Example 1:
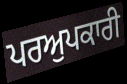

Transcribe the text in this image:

ਪਰਅੁਪਕਾਰੀ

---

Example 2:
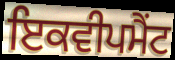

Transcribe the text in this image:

ਇਕਵੀਪਮੈਂਟ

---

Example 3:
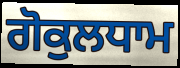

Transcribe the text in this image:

ਗੋਕੁਲਧਾਮ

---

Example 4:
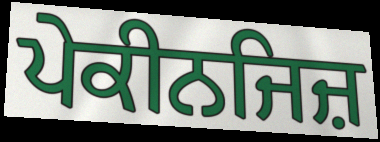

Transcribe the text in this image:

ਪੇਕੀਨਜਿਜ਼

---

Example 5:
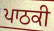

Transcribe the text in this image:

ਪਾਠਕੀ